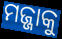
ମଜ୍ଜାକୁ